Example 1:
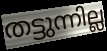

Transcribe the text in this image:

തട്ടുന്നില്ല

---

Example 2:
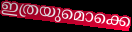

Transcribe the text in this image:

ഇത്രയുമൊക്കെ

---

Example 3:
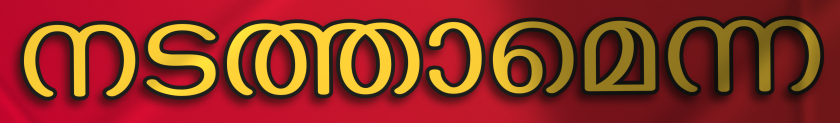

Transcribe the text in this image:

നടത്താമെന്ന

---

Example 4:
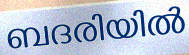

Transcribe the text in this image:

ബദരിയിൽ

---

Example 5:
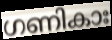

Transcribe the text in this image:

ഗണികാഃ